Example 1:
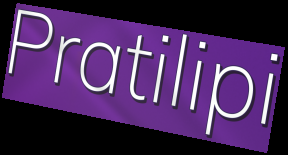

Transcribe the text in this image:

Pratilipi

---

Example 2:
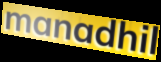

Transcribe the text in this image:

manadhil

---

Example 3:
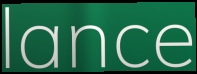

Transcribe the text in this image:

lance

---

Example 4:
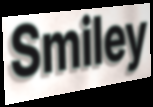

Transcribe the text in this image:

Smiley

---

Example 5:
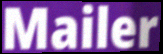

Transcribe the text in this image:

Mailer